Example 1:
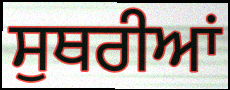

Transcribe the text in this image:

ਸੁਥਰੀਆਂ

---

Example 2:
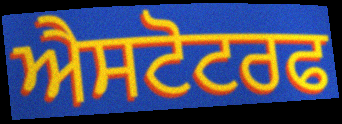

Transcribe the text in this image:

ਐਸਟੋਟਰਫ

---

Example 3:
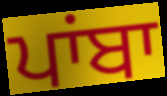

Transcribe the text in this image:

ਪਾਂਬਾ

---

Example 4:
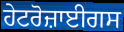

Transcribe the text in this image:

ਹੇਟਰੋਜ਼ਾਈਗਸ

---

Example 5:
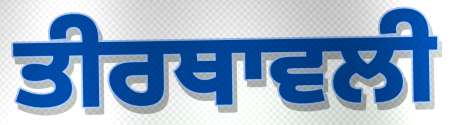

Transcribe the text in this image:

ਤੀਰਥਾਵਲੀ